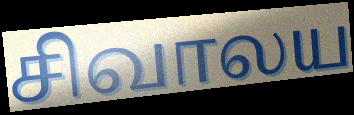
சிவாலய